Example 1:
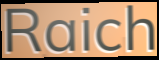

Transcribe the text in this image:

Raich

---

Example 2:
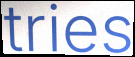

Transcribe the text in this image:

tries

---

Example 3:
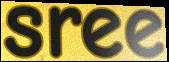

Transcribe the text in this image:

sree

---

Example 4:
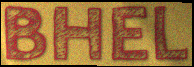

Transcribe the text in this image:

BHEL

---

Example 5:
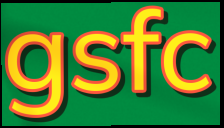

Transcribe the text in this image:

gsfc